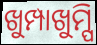
ଖୁମ୍ପାଖୁମ୍ପି